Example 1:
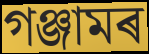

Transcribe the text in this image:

গঞ্জামৰ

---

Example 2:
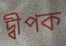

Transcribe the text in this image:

দ্বীপক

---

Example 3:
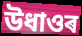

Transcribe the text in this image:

উধাওৰ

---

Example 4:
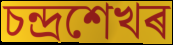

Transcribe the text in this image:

চন্দ্ৰশেখৰ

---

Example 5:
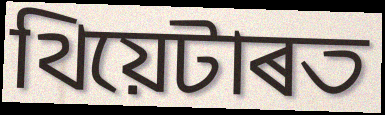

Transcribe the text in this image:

থিয়েটাৰত